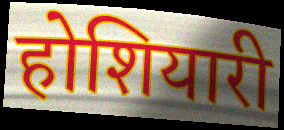
होशियारी